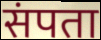
संपता